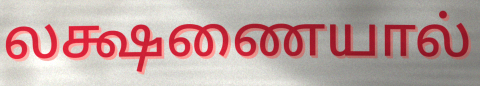
லக்ஷணையால்